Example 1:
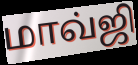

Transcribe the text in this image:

மாவ்ஜி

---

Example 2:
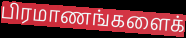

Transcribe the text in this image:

பிரமாணங்களைக்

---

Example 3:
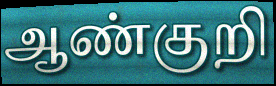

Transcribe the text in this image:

ஆண்குறி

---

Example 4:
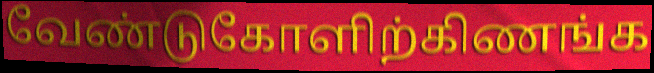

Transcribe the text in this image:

வேண்டுகோளிற்கிணங்க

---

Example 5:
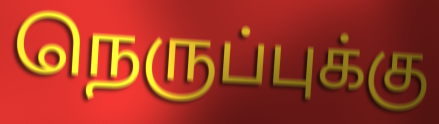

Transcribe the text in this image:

நெருப்புக்கு